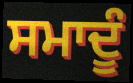
ਸਮਾਦੂੰ